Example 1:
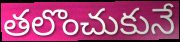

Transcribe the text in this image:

తలొంచుకునే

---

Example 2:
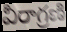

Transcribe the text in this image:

వీరాగ్రణి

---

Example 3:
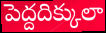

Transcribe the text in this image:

పెద్దదిక్కులా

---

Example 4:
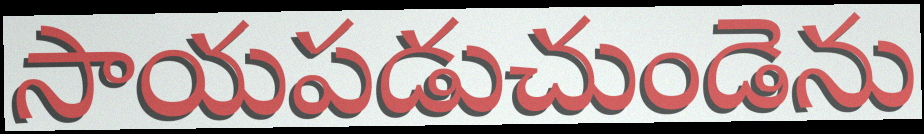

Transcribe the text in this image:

సాయపడుచుండెను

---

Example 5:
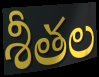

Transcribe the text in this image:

శీతల